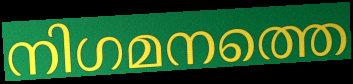
നിഗമനത്തെ